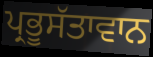
ਪ੍ਰਭੂਸੱਤਾਵਾਨ